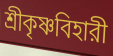
শ্রীকৃষ্ণবিহারী